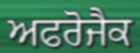
ਅਫਰੋਜੈਕ